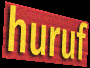
huruf